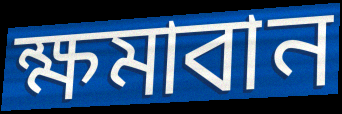
ক্ষমাবান